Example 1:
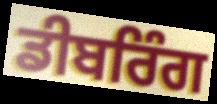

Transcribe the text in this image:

ਡੀਬਰਿੰਗ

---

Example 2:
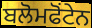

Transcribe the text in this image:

ਬਲੋਮਫੋਂਟੇਨ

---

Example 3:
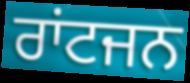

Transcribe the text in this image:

ਰਾਂਟਜਨ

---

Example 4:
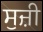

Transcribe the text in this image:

ਸੁਜ਼ੀ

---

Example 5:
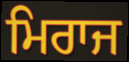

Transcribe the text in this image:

ਮਿਰਾਜ